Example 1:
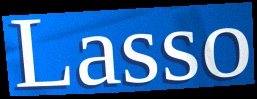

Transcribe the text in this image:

Lasso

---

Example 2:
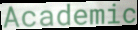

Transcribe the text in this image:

Academic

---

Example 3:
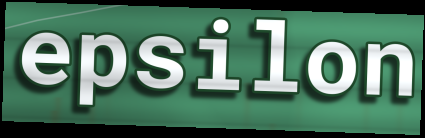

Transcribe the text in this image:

epsilon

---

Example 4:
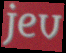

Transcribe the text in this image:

jeu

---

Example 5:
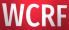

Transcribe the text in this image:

WCRF